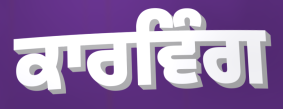
ਕਾਰਵਿੰਗ